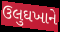
ઉલુઘખાને